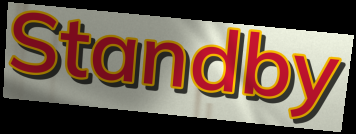
Standby